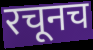
रचूनच